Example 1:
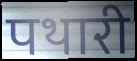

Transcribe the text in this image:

पथारी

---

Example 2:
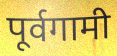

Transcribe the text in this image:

पूर्वगामी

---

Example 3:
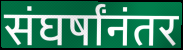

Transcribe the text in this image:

संघर्षांनंतर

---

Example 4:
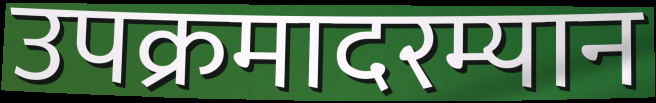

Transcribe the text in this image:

उपक्रमादरम्यान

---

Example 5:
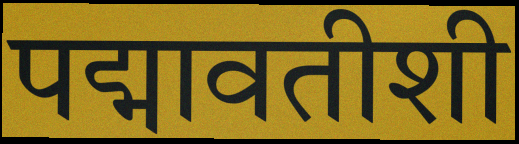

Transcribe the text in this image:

पद्मावतीशी